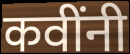
कवींनी